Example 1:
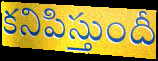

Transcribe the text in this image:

కనిపిస్తుందీ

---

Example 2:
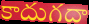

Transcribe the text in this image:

కాదుగదా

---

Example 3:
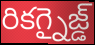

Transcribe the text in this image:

రికగ్నైజ్డ్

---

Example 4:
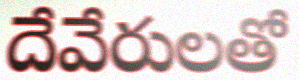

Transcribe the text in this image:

దేవేరులతో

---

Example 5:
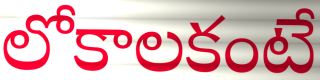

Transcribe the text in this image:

లోకాలకంటే